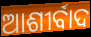
ଆଶୀର୍ବାଦ